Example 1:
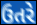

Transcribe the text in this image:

ઉતરે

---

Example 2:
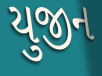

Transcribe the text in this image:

યુજીન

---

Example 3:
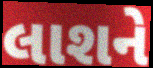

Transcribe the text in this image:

લાશને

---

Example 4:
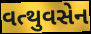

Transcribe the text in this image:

વત્થુવસેન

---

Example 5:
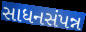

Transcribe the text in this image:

સાધનસંપન્ન